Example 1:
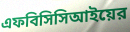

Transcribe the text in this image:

এফবিসিসিআইয়ের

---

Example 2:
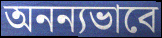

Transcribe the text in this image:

অনন্যভাবে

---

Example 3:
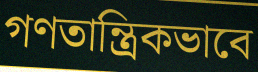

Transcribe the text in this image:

গণতান্ত্রিকভাবে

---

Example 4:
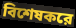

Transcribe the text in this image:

বিশেষকরে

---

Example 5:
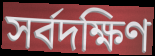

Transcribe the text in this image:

সর্বদক্ষিণ